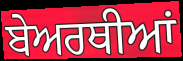
ਬੇਅਰਥੀਆਂ